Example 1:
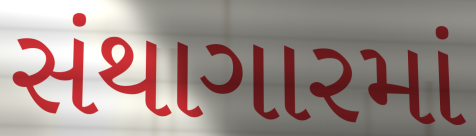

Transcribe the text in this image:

સંથાગારમાં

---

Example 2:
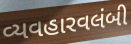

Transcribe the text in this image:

વ્યવહારવલંબી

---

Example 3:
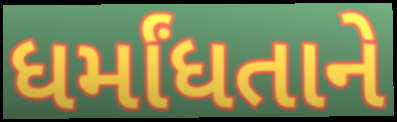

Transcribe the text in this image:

ધર્માંધતાને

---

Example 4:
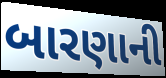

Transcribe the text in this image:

બારણાની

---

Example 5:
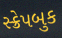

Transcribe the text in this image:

સ્ક્રેપબુક